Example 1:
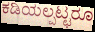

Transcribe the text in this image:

ಕಡಿಯಲ್ಪಟ್ಟರೂ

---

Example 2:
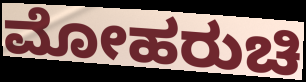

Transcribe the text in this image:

ಮೋಹರುಚಿ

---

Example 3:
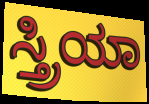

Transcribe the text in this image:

ಸ್ತ್ರಿಯಾ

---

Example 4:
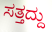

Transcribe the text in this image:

ಸತ್ತದ್ದು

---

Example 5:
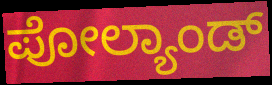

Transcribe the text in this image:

ಪೋಲ್ಯಾಂಡ್